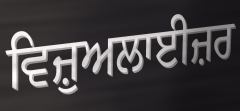
ਵਿਜ਼ੁਅਲਾਈਜ਼ਰ